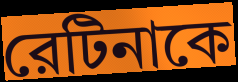
রেটিনাকে